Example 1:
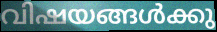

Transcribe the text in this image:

വിഷയങ്ങൾക്കു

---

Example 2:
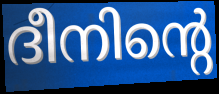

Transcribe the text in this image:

ദീനിന്റെ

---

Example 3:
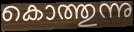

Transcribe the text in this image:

കൊത്തുന്നു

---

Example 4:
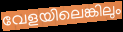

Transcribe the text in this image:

വേളയിലെങ്കിലും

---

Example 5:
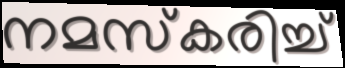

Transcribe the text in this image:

നമസ്കരിച്ച്